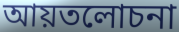
আয়তলোচনা